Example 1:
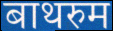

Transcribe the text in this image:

बाथरुम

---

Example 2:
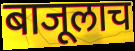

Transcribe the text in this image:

बाजूलाच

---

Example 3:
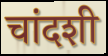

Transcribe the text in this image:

चांदशी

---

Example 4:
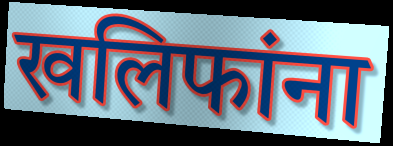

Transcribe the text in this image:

खलिफांना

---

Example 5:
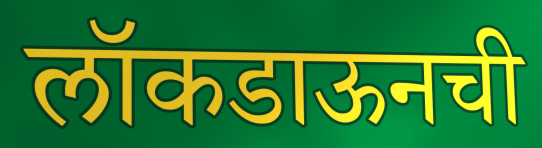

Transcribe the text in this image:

लॉकडाऊनची